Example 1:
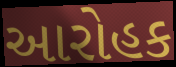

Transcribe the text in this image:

આરોહક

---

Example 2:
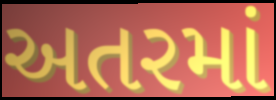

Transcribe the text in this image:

અતરમાં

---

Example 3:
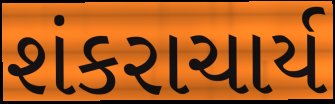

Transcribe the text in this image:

શંકરાચાર્ય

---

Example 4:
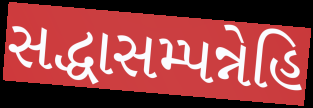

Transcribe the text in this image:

સદ્ધાસમ્પન્નેહિ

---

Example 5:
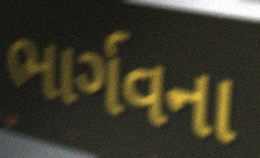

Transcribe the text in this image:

ભાર્ગવના